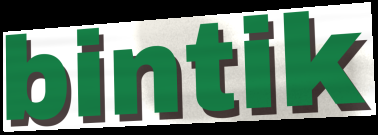
bintik